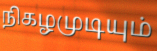
நிகழமுடியும்